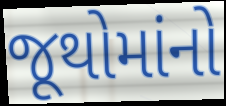
જૂથોમાંનો